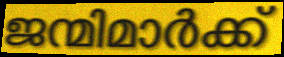
ജന്മിമാർക്ക്